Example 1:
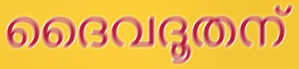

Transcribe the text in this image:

ദൈവദൂതന്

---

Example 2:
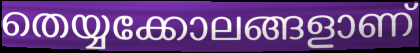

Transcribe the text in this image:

തെയ്യക്കോലങ്ങളാണ്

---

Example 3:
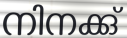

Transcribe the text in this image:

നിനക്കു്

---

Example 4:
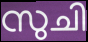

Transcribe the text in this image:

സുചി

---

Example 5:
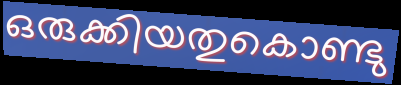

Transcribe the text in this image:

ഒരുക്കിയതുകൊണ്ടു